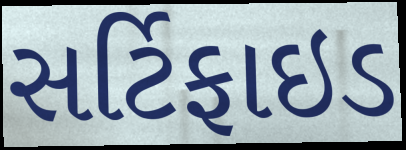
સર્ટિફાઇડ